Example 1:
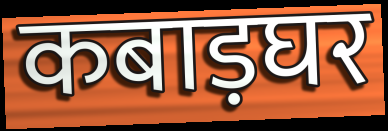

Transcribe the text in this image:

कबाड़घर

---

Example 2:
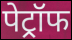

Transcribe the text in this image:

पेट्रॉफ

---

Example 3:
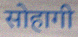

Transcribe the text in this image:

सोहागी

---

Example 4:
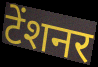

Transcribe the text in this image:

टेंशनर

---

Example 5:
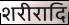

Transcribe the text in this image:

शरीरादि